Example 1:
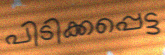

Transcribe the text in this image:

പിടിക്കപ്പെട്ട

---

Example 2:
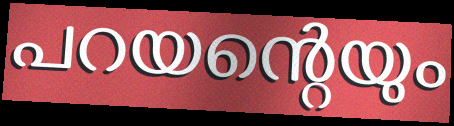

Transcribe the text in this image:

പറയന്റെയും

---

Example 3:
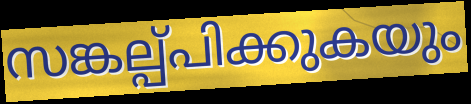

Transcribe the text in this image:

സങ്കല്പ്പിക്കുകയും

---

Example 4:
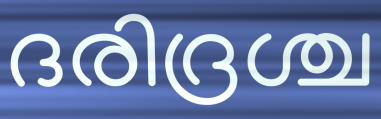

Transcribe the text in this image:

ദരിദ്രശ്ച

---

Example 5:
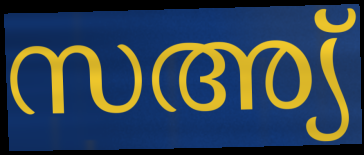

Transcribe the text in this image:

സഅ്യ്